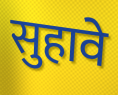
सुहावे